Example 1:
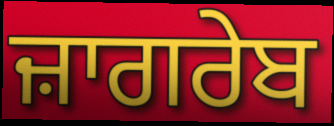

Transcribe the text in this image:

ਜ਼ਾਗਰੇਬ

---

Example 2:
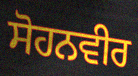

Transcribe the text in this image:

ਸੋਹਨਵੀਰ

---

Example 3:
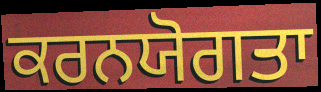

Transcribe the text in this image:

ਕਰਨਯੋਗਤਾ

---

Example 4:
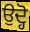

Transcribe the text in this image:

ਉਦ੍ਹੋ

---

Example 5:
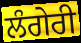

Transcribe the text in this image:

ਲੰਗੇਰੀ